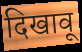
दिखावू